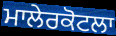
ਮਾਲੇਰਕੋਟਲਾ